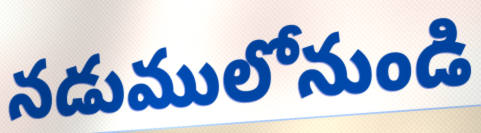
నడుములోనుండి